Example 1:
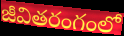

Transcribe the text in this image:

జీవితరంగంలో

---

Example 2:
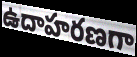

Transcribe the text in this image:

ఉదాహరణగా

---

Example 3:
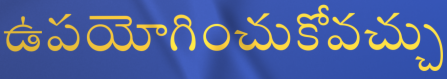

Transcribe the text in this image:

ఉపయోగించుకోవచ్చు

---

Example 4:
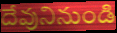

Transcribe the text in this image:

దేవునినుండి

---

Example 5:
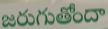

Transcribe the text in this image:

జరుగుతోందా